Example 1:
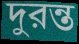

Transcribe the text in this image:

দুরন্ত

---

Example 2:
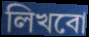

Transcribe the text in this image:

লিখবো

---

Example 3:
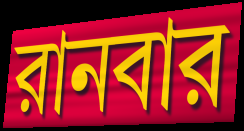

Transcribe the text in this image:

রানবার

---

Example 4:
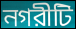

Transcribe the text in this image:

নগরীটি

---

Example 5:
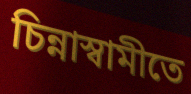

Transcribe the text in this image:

চিন্নাস্বামীতে